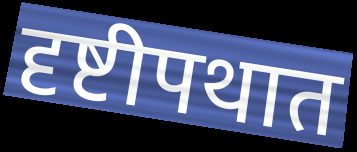
दृष्टीपथात